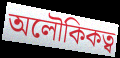
অলৌকিকত্ব